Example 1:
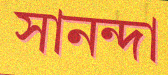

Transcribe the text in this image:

সানন্দা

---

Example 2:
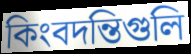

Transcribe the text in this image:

কিংবদন্তিগুলি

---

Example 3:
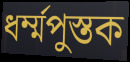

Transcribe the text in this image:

ধর্ম্মপুস্তক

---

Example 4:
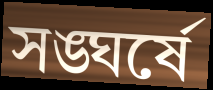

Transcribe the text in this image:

সঙ্ঘর্ষে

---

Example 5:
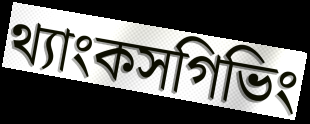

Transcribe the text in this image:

থ্যাংকসগিভিং